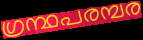
ഗ്രന്ഥപരമ്പര